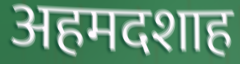
अहमदशाह